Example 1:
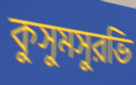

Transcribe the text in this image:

কুসুমসুরভি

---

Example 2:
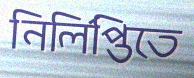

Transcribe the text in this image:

নির্লিপ্তিতে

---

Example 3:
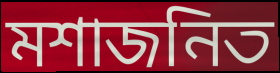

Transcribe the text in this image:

মশাজনিত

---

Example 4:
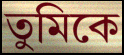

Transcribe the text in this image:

তুমিকে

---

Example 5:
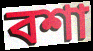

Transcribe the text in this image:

বশা